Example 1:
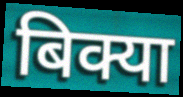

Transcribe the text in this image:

बिक्या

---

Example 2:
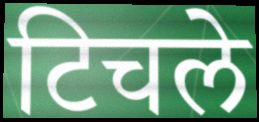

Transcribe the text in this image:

टिचले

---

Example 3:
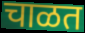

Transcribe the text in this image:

चाळत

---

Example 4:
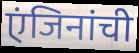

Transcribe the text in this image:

एंजिनांची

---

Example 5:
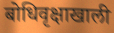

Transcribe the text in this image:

बोधिवृक्षाखाली